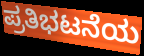
ಪ್ರತಿಭಟನೆಯ